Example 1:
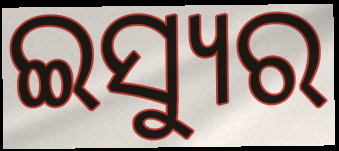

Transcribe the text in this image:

ଇସ୍ୟୁର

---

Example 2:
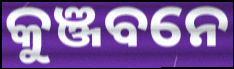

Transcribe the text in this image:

କୁଞ୍ଜବନେ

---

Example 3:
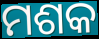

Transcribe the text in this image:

ମଶକ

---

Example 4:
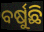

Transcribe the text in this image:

ବର୍ଷୁଛି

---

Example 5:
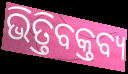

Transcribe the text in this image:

ଭିତ୍ତିବକ୍ତବ୍ୟ